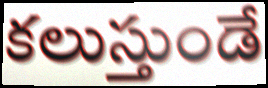
కలుస్తుండే